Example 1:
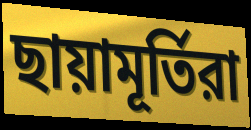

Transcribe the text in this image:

ছায়ামূর্তিরা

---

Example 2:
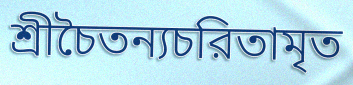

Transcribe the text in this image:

শ্রীচৈতন্যচরিতামৃত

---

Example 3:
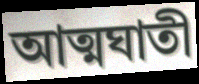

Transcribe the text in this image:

আত্মঘাতী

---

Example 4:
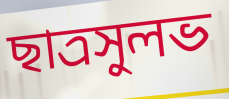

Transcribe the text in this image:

ছাত্রসুলভ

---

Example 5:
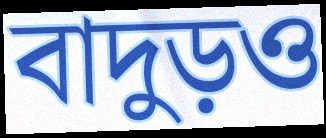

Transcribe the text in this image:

বাদুড়ও